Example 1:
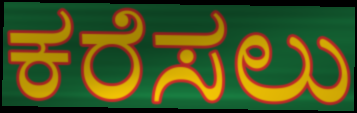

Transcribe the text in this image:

ಕರೆಸಲು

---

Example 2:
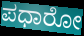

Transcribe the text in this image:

ಪಧಾರೋ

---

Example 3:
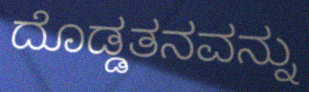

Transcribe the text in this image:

ದೊಡ್ಡತನವನ್ನು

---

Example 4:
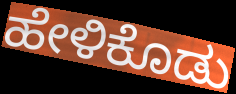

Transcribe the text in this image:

ಹೇಳಿಕೊಡು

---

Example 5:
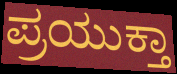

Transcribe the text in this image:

ಪ್ರಯುಕ್ತಾ